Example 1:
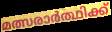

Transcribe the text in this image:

മത്സരാർത്ഥിക്ക്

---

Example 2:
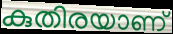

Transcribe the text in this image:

കുതിരയാണ്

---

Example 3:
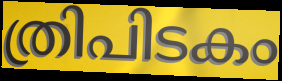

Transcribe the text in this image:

ത്രിപിടകം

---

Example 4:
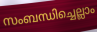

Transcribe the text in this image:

സംബന്ധിച്ചെല്ലാം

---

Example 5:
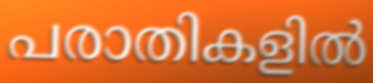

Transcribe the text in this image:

പരാതികളിൽ